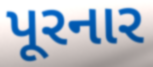
પૂરનાર